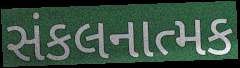
સંકલનાત્મક